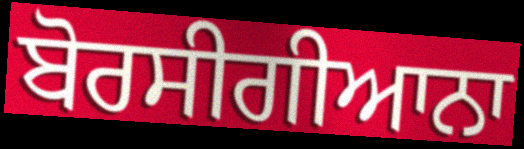
ਬੋਰਸੀਗੀਆਨਾ